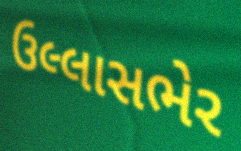
ઉલ્લાસભેર